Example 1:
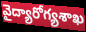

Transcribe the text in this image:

వైద్యారోగ్యశాఖ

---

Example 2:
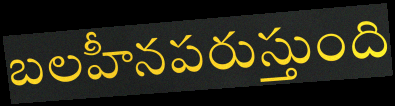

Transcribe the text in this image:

బలహీనపరుస్తుంది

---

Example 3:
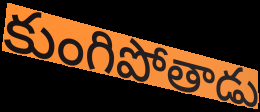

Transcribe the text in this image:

కుంగిపోతాడు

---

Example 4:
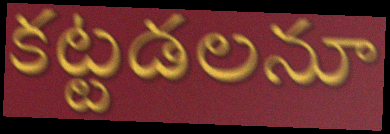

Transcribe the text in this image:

కట్టడలనూ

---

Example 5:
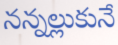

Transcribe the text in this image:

నన్నల్లుకునే